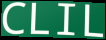
CLIL